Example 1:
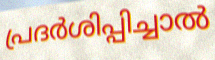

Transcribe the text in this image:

പ്രദർശിപ്പിച്ചാൽ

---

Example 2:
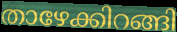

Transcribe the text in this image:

താഴേക്കിറങ്ങി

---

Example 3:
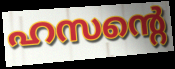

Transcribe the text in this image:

ഹസന്റെ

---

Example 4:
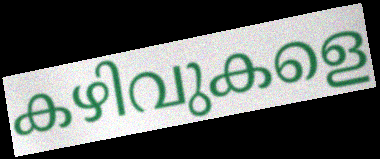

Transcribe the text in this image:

കഴിവുകളെ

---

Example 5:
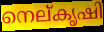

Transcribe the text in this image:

നെല്കൃഷി